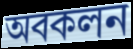
অবকলন